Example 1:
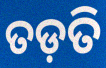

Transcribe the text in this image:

ତଡ଼ତି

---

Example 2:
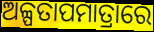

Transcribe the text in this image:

ଅଳ୍ପତାପମାତ୍ରାରେ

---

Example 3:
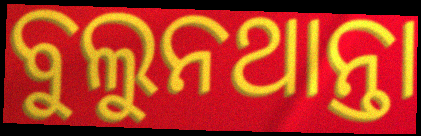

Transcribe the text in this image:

ବୁଲୁନଥାନ୍ତା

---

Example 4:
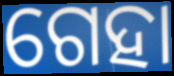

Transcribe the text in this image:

ଗେହା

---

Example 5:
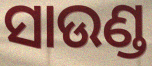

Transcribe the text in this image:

ସାଉଣ୍ଡ